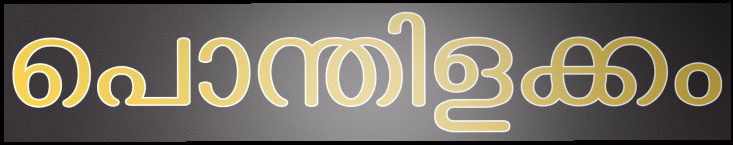
പൊന്തിളക്കം